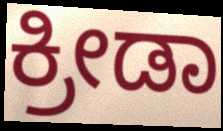
ಕ್ರೀಡಾ